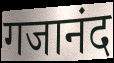
गजानंद